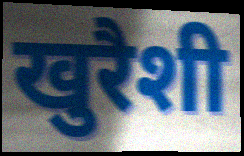
खुरैशी